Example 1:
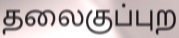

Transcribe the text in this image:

தலைகுப்புற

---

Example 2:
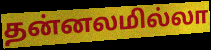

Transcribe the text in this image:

தன்னலமில்லா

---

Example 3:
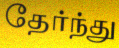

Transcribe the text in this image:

தேர்ந்து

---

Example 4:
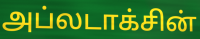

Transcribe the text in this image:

அப்லடாக்சின்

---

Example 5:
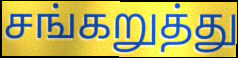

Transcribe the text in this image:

சங்கறுத்து